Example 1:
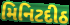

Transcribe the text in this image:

મિનિટદીઠ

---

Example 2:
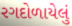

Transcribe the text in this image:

રગદોળાયેલું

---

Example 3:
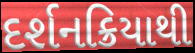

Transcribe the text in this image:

દર્શનક્રિયાથી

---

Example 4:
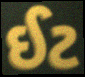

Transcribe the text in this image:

ઈટ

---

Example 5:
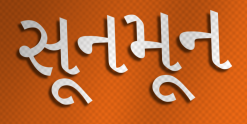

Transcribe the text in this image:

સૂનમૂન